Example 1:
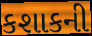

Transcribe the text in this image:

કશાકની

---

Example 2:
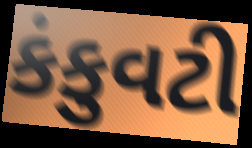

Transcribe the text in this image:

કંકુવટી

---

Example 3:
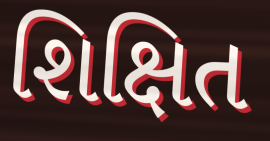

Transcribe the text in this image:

શિક્ષિત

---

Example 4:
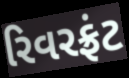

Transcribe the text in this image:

રિવરફ્રંટ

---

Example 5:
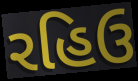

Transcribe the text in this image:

રહિઉ